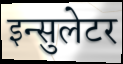
इन्सुलेटर